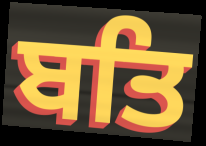
ਬਤਿ